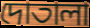
দোতালা